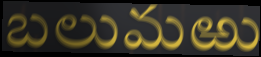
బలుమఱు